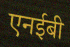
एनईबी